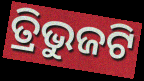
ତ୍ରିଭୁଜଟି